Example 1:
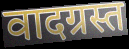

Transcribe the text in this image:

वादग्रस्त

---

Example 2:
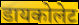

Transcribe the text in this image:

डायकोलेट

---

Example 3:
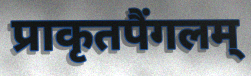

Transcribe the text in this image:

प्राकृतपैंगलम्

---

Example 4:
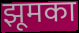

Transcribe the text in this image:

झूमका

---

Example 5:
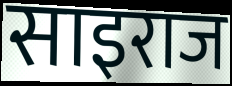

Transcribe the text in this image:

साइराज